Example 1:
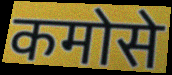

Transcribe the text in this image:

कमोसे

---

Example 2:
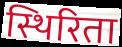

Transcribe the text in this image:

स्थिरिता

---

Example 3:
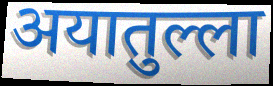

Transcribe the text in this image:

अयातुल्‍ला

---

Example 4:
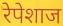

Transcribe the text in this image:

रेपेशाज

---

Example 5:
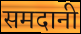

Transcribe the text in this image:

समदानी